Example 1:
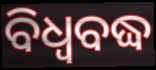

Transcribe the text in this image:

ବିଧ୍ଵବଦ୍ଧ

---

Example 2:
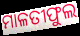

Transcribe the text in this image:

ମାଳତୀଫୁଲ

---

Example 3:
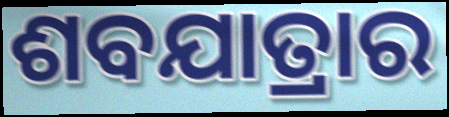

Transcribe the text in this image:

ଶବଯାତ୍ରାର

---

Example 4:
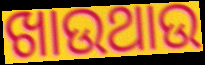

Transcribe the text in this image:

ଖାଉଥାଉ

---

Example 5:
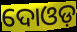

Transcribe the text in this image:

ଦୋଓଡ଼